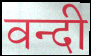
वन्दी